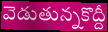
వెడుతున్నకొద్దీ